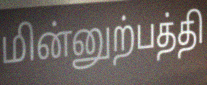
மின்னுற்பத்தி